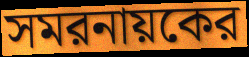
সমরনায়কের